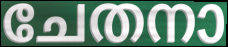
ചേതനാ